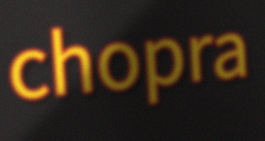
chopra